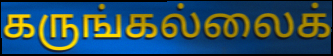
கருங்கல்லைக்